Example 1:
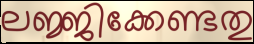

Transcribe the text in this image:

ലജ്ജിക്കേണ്ടതു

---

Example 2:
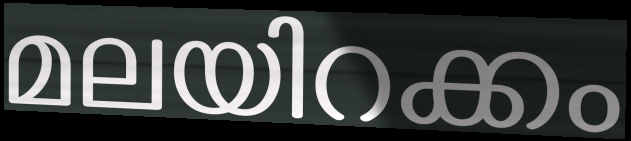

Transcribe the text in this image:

മലയിറക്കം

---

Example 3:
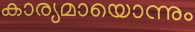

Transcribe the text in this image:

കാര്യമായൊന്നും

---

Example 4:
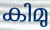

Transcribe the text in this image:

കിമു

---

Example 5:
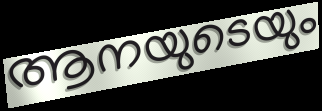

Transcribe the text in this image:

ആനയുടെയും